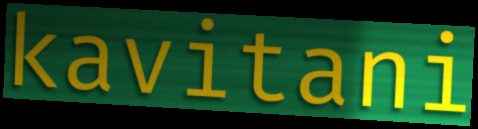
kavitani